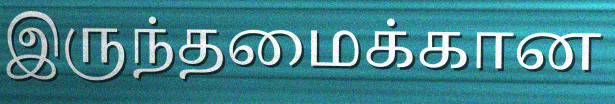
இருந்தமைக்கான